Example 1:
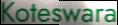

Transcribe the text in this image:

Koteswara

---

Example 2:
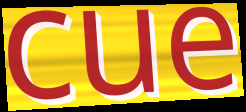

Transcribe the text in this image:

cue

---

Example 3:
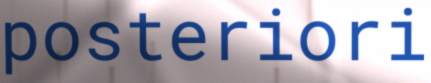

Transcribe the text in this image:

posteriori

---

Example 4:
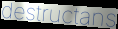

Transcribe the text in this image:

destructans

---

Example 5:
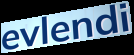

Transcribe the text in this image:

evlendi